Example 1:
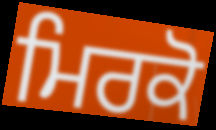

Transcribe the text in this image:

ਮਿਰਕੋ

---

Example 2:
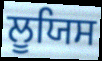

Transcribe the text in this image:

ਲੂਯਿਸ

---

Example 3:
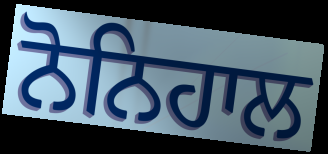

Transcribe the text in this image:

ਨੋਨਿਹਾਲ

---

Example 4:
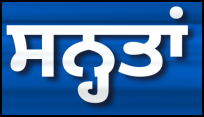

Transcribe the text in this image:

ਸਨ੍ਹਤਾਂ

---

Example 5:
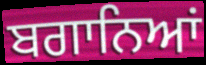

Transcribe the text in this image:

ਬਗਾਨਿਆਂ